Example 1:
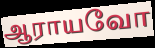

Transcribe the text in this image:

ஆராயவோ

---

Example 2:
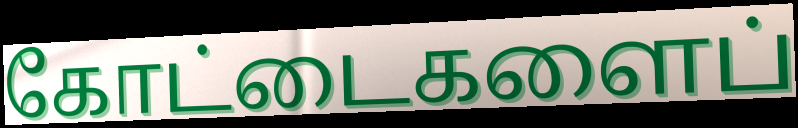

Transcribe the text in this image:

கோட்டைகளைப்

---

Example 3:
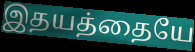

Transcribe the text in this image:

இதயத்தையே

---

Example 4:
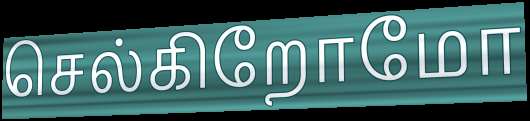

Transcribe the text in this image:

செல்கிறோமோ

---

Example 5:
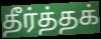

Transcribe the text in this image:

தீர்த்தக்